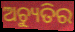
ଅଚ୍ୟୁତିର